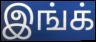
இங்க்